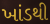
ખાંડથી